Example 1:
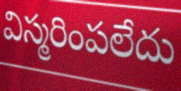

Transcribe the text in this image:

విస్మరింపలేదు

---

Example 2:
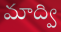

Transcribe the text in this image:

మాద్వి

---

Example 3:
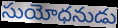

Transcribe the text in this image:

సుయోధనుడు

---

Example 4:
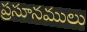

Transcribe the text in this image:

ప్రసూనములు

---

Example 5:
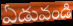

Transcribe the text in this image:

ఏడువండి